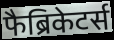
फैब्रिकेटर्स